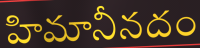
హిమానీనదం